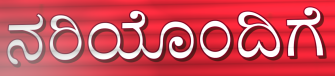
ನರಿಯೊಂದಿಗೆ